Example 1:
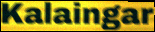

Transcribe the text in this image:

Kalaingar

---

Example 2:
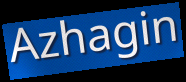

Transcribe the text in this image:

Azhagin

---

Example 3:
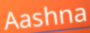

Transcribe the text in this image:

Aashna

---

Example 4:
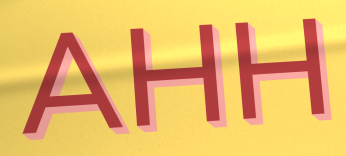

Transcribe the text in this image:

AHH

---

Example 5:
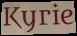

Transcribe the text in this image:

Kyrie